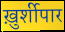
ख़ुर्शीपार